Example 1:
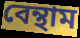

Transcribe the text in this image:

বেন্থাম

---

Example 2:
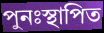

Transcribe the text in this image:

পুনঃস্থাপিত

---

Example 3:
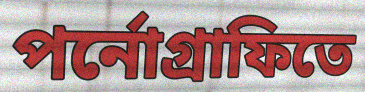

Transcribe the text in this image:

পর্নোগ্রাফিতে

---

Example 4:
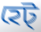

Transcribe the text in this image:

হেট্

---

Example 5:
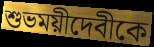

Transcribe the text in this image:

শুভময়ীদেবীকে